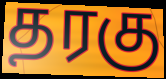
தரகு